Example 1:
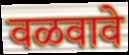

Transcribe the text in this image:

वळवावे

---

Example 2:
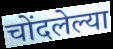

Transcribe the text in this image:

चोंदलेल्या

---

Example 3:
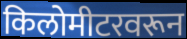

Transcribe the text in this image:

किलोमीटरवरून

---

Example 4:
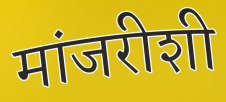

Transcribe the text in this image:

मांजरीशी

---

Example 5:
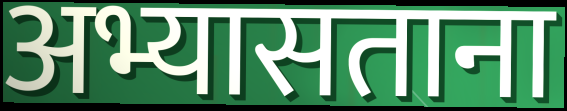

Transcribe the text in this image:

अभ्यासताना